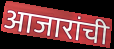
आजारांची